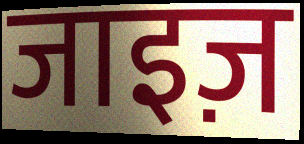
जाइज़